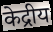
केद्रीय